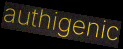
authigenic